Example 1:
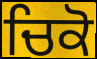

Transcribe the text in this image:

ਚਿਕੋ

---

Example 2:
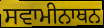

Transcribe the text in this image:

ਸਵਾਮੀਨਾਥਨ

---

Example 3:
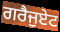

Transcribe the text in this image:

ਗਰੈਜੁਏਟ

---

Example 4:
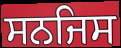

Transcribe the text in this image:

ਸਨਜਿਸ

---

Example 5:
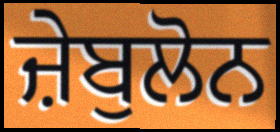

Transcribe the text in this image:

ਜ਼ੇਬੁਲੋਨ